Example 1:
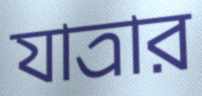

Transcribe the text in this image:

যাত্রার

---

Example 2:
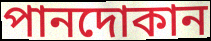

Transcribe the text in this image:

পানদোকান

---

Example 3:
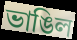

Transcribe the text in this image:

ভাঙিল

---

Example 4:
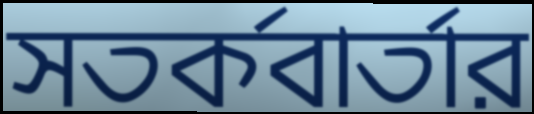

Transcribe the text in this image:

সতর্কবার্তার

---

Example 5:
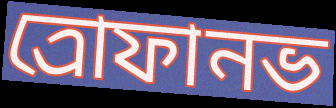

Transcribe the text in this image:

ত্রোফানভ